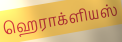
ஹெராக்ளியஸ்